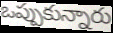
ఒప్పుకున్నారు